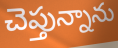
చెప్తున్నాను